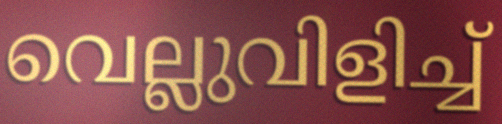
വെല്ലുവിളിച്ച്